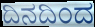
ದಿನದಿಂದ